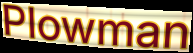
Plowman